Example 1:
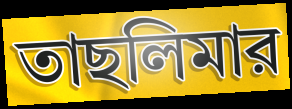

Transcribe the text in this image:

তাছলিমার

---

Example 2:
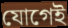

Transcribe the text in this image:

যোগেই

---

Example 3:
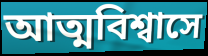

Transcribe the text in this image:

আত্মবিশ্বাসে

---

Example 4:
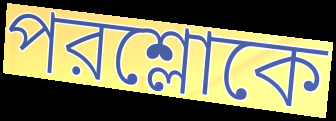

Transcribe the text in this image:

পরশ্লোকে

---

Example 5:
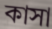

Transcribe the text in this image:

কাসা